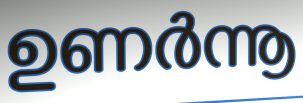
ഉണർന്നൂ